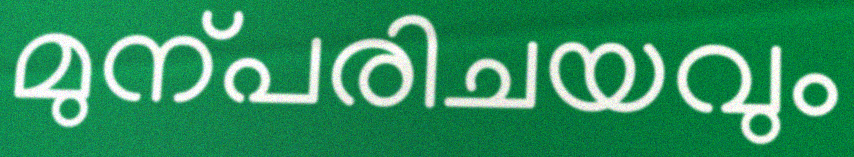
മുന്പരിചയവും